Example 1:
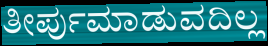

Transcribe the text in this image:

ತೀರ್ಪುಮಾಡುವದಿಲ್ಲ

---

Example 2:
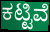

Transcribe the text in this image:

ಕಟ್ಟಿವೆ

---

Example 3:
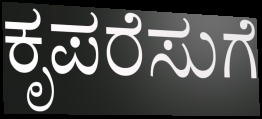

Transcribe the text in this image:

ಕೃಪರೆಸುಗೆ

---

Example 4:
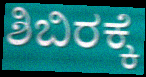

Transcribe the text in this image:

ಶಿಬಿರಕ್ಕೆ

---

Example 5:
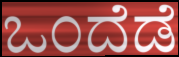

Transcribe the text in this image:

ಒಂದೆಡೆ